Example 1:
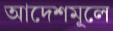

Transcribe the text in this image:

আদেশমূলে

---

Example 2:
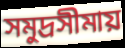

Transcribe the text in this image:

সমুদ্রসীমায়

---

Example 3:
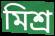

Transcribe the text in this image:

মিশ্র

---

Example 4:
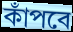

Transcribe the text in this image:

কাঁপবে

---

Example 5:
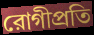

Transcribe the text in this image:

রোগীপ্রতি